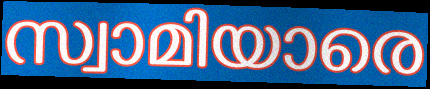
സ്വാമിയാരെ